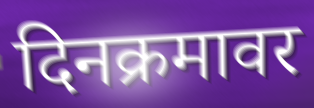
दिनक्रमावर